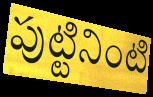
పుట్టినింటి